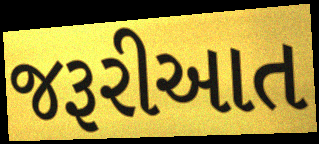
જરૂરીઆત